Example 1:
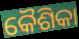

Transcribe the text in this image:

କୈଶିକା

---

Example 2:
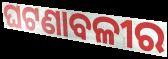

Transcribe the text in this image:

ଘଟଣାବଳୀର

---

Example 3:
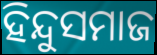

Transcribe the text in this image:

ହିନ୍ଦୁସମାଜ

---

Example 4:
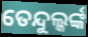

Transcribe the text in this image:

ତେନ୍ଦୁଲ୍କର୍ଙ୍କ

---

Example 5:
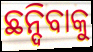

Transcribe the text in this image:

ଛନ୍ଦିବାକୁ